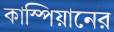
কাস্পিয়ানের